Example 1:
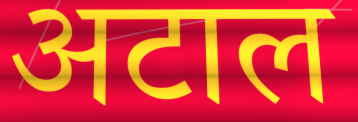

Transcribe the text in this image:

अटाल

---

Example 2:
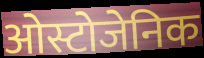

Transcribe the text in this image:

ओस्टोजेनिक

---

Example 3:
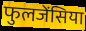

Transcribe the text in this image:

फुलजेंसिया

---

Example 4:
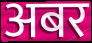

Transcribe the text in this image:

अबर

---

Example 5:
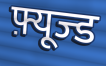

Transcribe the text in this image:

फ़्यूज्ड